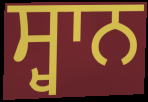
ਸ੍ਥਾਨ